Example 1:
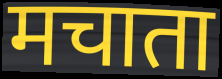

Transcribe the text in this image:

मचाता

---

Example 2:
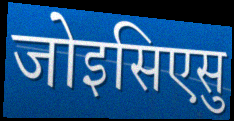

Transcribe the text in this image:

जोइसिएसु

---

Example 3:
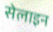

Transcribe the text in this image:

सेलाइन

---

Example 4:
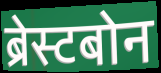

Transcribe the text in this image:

ब्रेस्टबोन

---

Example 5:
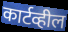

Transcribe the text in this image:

कार्टव्हील